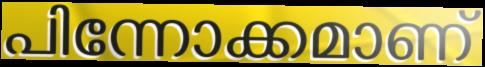
പിന്നോക്കമാണ്